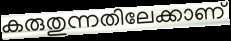
കരുതുന്നതിലേക്കാണ്